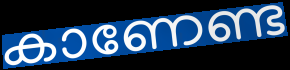
കാണേണ്ട